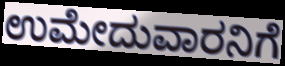
ಉಮೇದುವಾರನಿಗೆ